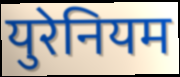
युरेनियम